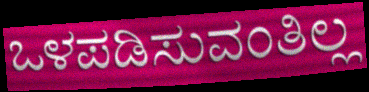
ಒಳಪಡಿಸುವಂತಿಲ್ಲ